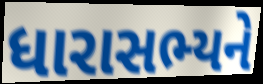
ધારાસભ્યને